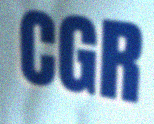
CGR